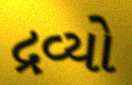
દ્રવ્યો